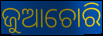
ଜୁଆଚୋରି